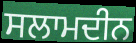
ਸਲਾਮਦੀਨ